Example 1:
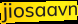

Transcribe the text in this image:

jiosaavn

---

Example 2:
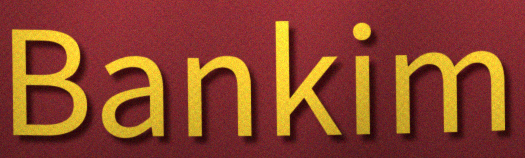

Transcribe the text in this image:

Bankim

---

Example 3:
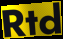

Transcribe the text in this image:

Rtd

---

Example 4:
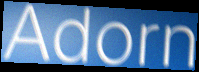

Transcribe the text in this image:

Adorn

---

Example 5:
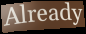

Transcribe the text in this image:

Already